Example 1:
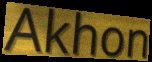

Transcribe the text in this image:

Akhon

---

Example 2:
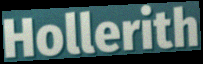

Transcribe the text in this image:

Hollerith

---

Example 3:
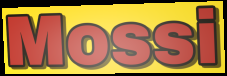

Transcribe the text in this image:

Mossi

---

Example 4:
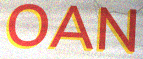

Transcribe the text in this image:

OAN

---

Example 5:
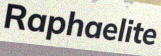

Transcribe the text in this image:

Raphaelite